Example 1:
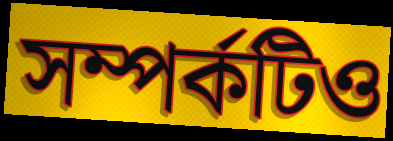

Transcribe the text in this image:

সম্পর্কটিও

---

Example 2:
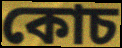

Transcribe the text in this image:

কোচ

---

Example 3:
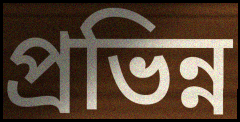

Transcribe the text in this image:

প্রভিন্ন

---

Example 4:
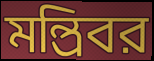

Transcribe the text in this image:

মন্ত্রিবর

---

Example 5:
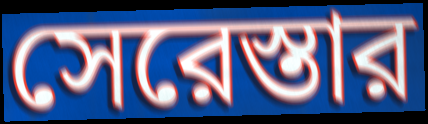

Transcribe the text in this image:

সেরেস্তার